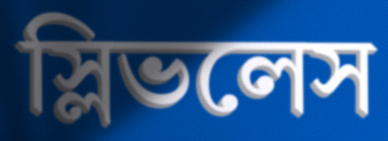
স্লিভলেস